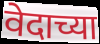
वेदाच्या